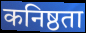
कनिष्ठता